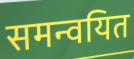
समन्वयित